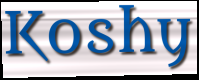
Koshy